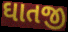
ઘાતજી